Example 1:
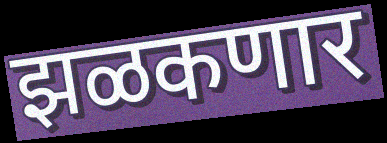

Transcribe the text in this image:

झळकणार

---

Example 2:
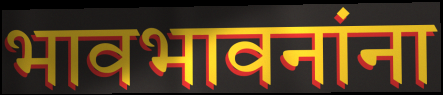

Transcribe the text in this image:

भावभावनांना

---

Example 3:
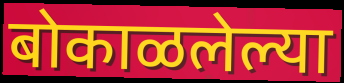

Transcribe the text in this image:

बोकाळलेल्या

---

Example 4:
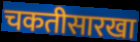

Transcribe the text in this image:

चकतीसारखा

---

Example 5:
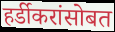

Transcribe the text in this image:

हर्डीकरांसोबत